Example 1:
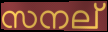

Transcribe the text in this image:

സനല്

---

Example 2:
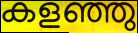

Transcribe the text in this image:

കളഞ്ഞു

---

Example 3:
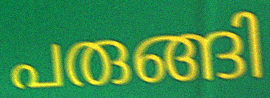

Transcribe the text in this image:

പരുങ്ങി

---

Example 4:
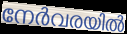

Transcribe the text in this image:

നേർവരയിൽ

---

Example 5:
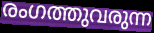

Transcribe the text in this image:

രംഗത്തുവരുന്ന